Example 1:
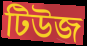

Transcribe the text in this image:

টিউজ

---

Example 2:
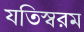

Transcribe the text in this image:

যতিস্বরম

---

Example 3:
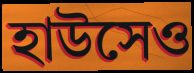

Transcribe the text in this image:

হাউসেও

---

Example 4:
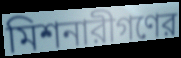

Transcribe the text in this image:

মিশনারীগণের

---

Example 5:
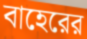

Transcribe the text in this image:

বাহেরের